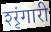
श्रृंगारी